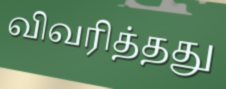
விவரித்தது